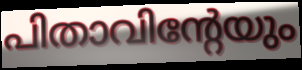
പിതാവിന്റേയും